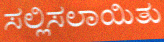
ಸಲ್ಲಿಸಲಾಯಿತು